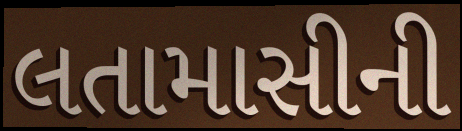
લતામાસીની